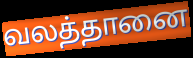
வலத்தானை